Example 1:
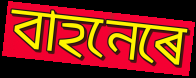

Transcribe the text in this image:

বাহনেৰে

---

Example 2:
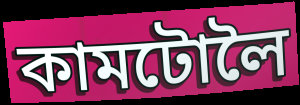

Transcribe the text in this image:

কামটোলৈ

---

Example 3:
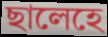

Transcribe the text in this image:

ছালেহে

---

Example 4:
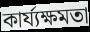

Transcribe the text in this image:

কাৰ্য্যক্ষমতা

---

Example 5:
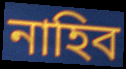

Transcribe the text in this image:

নাহিব